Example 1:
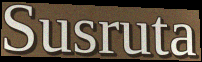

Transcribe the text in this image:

Susruta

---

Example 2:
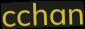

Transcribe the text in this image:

cchan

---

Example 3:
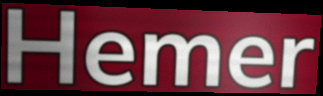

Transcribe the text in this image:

Hemer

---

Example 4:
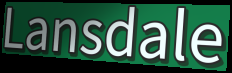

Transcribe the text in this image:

Lansdale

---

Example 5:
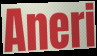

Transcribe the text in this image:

Aneri